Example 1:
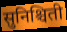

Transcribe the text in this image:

सुनिश्चिती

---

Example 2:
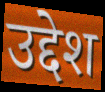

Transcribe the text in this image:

उद्देश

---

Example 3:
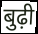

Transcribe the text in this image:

बुढ़ी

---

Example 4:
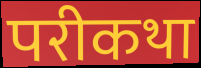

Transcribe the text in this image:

परीकथा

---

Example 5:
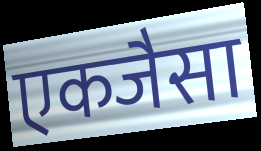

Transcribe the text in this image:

एकजैसा